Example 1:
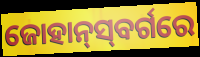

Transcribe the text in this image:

ଜୋହାନ୍‌ସ୍‌ବର୍ଗରେ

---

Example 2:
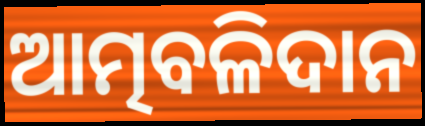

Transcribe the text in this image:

ଆତ୍ମବଳିଦାନ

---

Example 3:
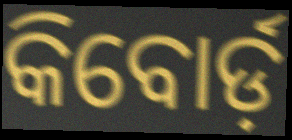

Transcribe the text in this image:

କିବୋର୍ଡ଼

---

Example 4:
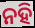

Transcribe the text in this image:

ନହି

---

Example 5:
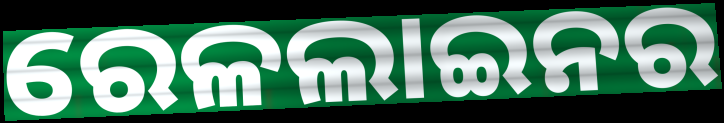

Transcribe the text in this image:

ରେଳଲାଇନର